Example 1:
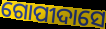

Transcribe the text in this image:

ଗୋପୀଦାସେ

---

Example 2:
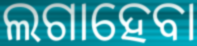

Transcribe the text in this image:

ଲଗାହେବା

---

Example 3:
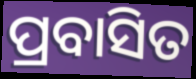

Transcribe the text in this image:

ପ୍ରବାସିତ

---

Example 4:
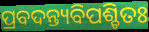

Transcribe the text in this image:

ପ୍ରବଦନ୍ତ୍ୟବିପଶ୍ଚିତଃ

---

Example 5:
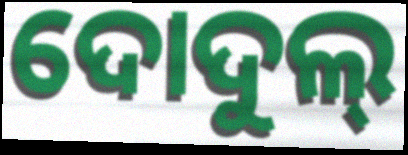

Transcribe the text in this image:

ଦୋଦୁଲ୍